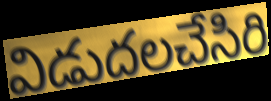
విడుదలచేసిరి